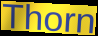
Thorn